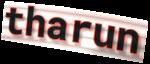
tharun